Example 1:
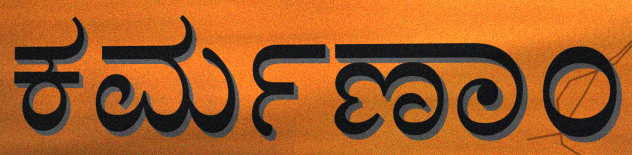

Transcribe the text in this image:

ಕರ್ಮಣಾಂ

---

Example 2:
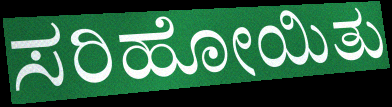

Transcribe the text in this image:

ಸರಿಹೋಯಿತು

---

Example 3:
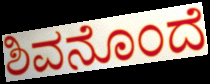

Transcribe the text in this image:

ಶಿವನೊಂದೆ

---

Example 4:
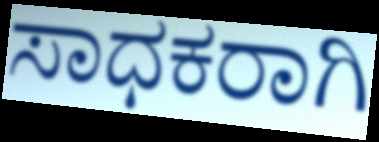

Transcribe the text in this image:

ಸಾಧಕರಾಗಿ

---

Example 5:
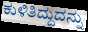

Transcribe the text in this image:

ಕುಳಿತಿದ್ದುದನ್ನು